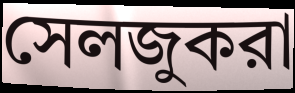
সেলজুকরা